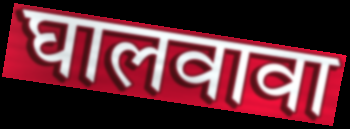
घालवावा